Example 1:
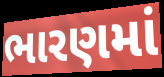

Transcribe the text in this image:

ભારણમાં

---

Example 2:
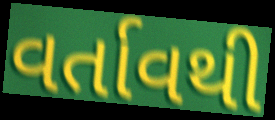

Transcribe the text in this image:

વર્તાવથી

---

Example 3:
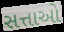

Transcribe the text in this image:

સત્તાઓ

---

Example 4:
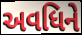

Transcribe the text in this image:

અવધિને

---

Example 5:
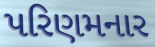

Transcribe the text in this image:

પરિણમનાર